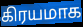
கிரயமாக